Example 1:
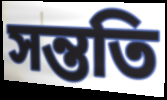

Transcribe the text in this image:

সন্ততি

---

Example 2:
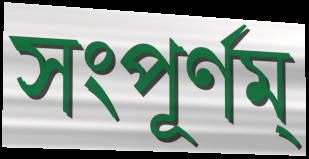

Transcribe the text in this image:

সংপূর্ণম্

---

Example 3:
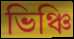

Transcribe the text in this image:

ভিঞ্চি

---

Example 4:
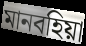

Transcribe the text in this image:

মানবহিয়া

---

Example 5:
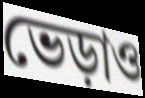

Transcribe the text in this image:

ভেড়াও